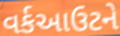
વર્કઆઉટને